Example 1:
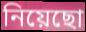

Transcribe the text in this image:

নিয়েছো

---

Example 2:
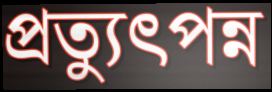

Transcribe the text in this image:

প্রত্যুৎপন্ন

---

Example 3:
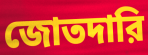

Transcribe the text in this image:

জোতদারি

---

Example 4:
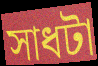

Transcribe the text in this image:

সাধটা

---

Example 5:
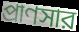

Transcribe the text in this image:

প্রাণসার